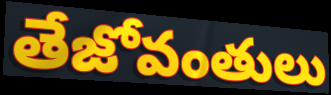
తేజోవంతులు